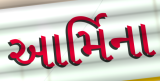
આર્મિના